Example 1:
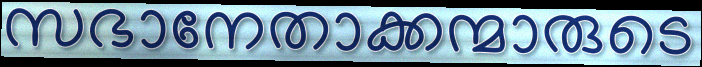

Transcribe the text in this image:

സഭാനേതാക്കന്മാരുടെ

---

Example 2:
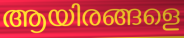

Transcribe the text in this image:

ആയിരങ്ങളെ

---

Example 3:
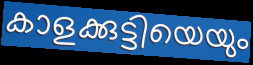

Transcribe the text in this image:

കാളക്കുട്ടിയെയും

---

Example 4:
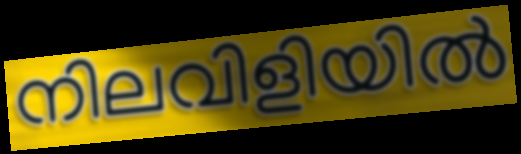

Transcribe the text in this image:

നിലവിളിയിൽ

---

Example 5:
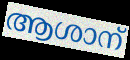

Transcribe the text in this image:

ആശാന്